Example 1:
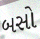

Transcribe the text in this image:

બસો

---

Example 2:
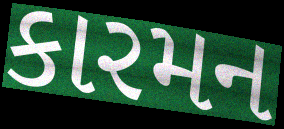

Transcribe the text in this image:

કારમન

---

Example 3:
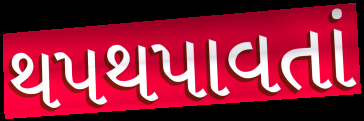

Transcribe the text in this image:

થપથપાવતાં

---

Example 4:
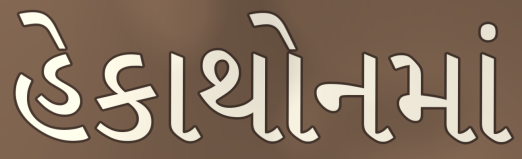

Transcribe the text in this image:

હેકાથોનમાં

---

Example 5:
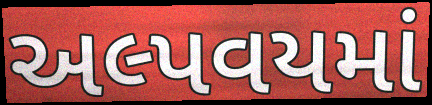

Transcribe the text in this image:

અલ્પવયમાં